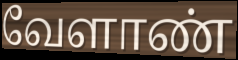
வேளாண்